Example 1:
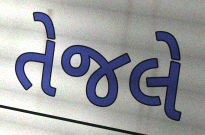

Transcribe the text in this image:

તેજલે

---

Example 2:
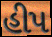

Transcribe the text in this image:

હીપ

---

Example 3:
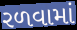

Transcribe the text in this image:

રળવામાં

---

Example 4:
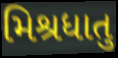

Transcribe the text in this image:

મિશ્રધાતુ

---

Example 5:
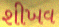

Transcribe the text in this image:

શીખવ